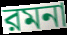
রমনা